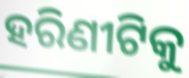
ହରିଣୀଟିକୁ